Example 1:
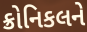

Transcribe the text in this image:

ક્રોનિકલને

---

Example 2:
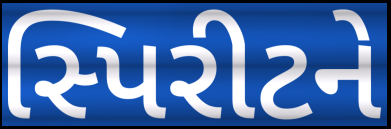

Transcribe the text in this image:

સ્પિરીટને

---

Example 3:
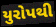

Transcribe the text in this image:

યુરોપથી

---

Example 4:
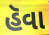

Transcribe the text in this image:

હૅવા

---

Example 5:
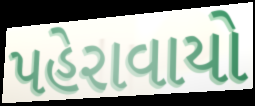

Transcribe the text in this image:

પહેરાવાયો